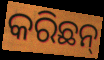
କରିଛନ୍